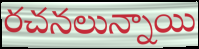
రచనలున్నాయి